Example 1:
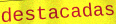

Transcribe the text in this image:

destacadas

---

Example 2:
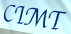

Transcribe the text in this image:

CIMT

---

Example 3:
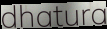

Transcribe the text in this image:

dhatura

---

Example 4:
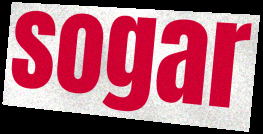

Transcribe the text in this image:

sogar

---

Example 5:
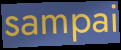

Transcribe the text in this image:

sampai